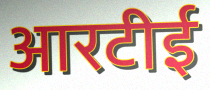
आरटीई